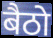
बैठो